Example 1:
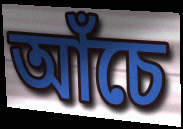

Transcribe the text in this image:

আঁচে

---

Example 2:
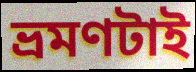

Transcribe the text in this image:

ভ্রমণটাই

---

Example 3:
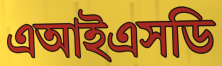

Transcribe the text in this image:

এআইএসডি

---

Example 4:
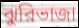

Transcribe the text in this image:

ঝুরিভাজা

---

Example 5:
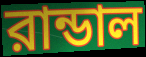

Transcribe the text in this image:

রান্ডাল